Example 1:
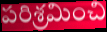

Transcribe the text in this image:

పరిశ్రమించి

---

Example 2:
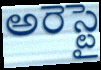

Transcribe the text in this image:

అరెస్టై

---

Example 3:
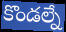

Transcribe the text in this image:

కొండల్నే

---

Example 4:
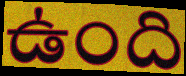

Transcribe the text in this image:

ఉంది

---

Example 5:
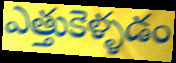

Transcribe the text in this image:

ఎత్తుకెళ్ళడం